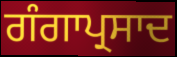
ਗੰਗਾਪ੍ਰਸਾਦ